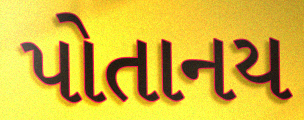
પોતાનય